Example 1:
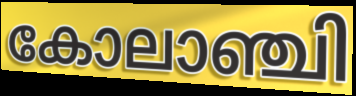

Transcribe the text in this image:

കോലാഞ്ചി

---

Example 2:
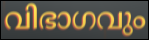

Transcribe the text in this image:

വിഭാഗവും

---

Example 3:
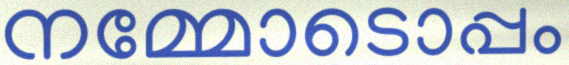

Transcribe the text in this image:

നമ്മോടൊപ്പം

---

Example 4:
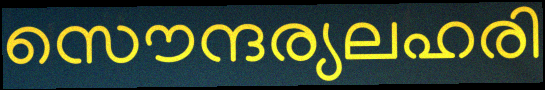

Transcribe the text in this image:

സൌന്ദര്യലഹരി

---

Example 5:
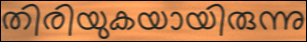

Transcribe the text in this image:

തിരിയുകയായിരുന്നു